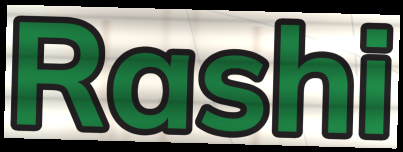
Rashi